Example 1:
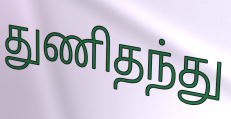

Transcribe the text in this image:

துணிதந்து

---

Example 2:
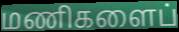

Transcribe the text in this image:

மணிகளைப்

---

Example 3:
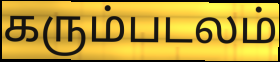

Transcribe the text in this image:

கரும்படலம்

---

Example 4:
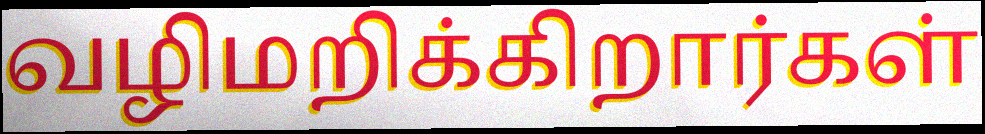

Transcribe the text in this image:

வழிமறிக்கிறார்கள்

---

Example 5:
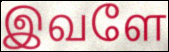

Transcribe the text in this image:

இவளே